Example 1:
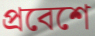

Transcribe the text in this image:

প্রবেশে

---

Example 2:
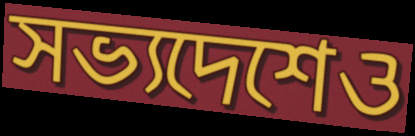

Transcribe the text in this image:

সভ্যদেশেও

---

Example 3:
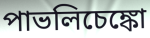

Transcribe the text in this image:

পাভলিচেঙ্কো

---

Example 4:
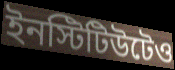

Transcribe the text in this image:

ইনস্টিটিউটেও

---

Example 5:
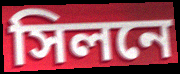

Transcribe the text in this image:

সিলনে